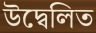
উদ্বেলিত